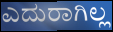
ಎದುರಾಗಿಲ್ಲ